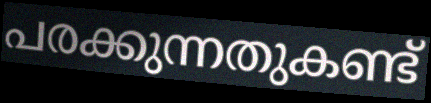
പരക്കുന്നതുകണ്ട്